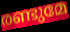
രണ്ടുമേ